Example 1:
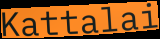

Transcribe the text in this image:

Kattalai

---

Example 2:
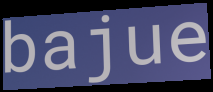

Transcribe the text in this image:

bajue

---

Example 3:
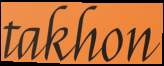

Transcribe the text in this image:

takhon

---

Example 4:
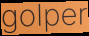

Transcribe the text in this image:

golper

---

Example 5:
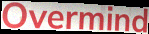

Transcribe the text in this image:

Overmind